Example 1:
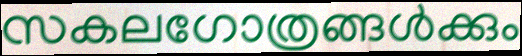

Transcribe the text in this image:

സകലഗോത്രങ്ങൾക്കും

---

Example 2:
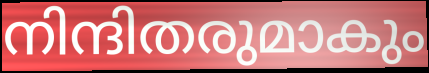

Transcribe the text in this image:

നിന്ദിതരുമാകും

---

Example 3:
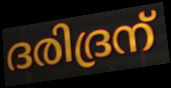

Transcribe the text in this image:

ദരിദ്രന്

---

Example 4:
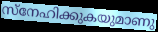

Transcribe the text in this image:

സ്നേഹിക്കുകയുമാണു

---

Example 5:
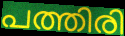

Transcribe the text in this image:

പത്തിരി